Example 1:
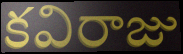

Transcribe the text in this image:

కవిరాజు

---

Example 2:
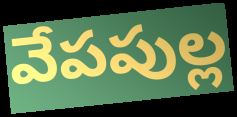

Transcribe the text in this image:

వేపపుల్ల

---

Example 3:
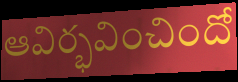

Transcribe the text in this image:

ఆవిర్భవించిందో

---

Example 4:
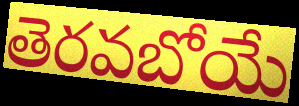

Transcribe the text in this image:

తెరవబోయే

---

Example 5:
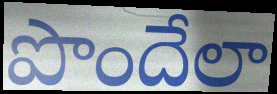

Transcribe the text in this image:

పొందేలా